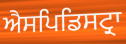
ਐਸਪਿਡਿਸਟ੍ਰਾ